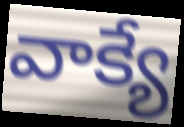
వాక్యే